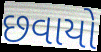
છવાયો